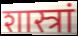
शास्त्रां